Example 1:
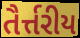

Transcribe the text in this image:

તૈર્ત્તરીય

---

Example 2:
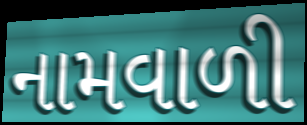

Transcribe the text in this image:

નામવાળી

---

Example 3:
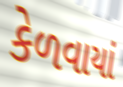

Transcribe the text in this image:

કેળવાયાં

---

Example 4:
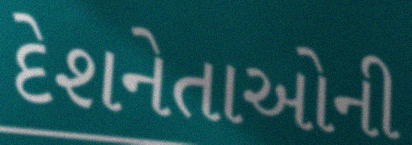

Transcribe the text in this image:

દેશનેતાઓની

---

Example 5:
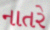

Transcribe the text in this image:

નાતરે